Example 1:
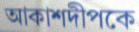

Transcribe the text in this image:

আকাশদীপকে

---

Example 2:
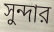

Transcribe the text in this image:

সুন্দার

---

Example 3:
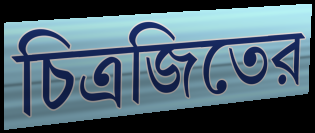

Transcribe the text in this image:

চিত্রজিতের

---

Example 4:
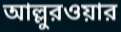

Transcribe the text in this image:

আল্লুরওয়ার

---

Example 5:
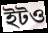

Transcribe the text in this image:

ইটও